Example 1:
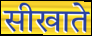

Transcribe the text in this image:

सीखाते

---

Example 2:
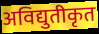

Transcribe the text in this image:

अविद्युतीकृत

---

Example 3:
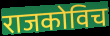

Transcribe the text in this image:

राजकोविच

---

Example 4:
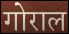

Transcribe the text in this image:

गोराल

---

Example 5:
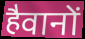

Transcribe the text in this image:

हैवानों